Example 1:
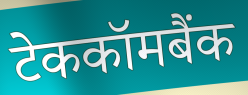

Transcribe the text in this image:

टेककॉमबैंक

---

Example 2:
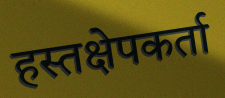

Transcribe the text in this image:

हस्तक्षेपकर्ता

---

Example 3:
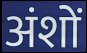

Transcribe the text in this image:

अंशों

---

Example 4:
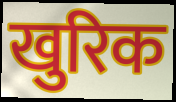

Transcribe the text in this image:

खुरिक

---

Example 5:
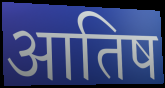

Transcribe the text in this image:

आतिष